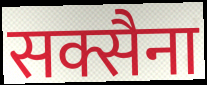
सक्सैना